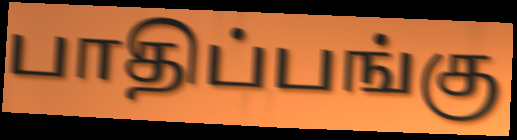
பாதிப்பங்கு